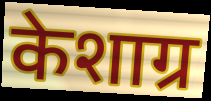
केशाग्र